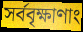
সর্ববৃক্ষাণাং